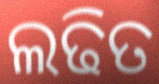
ଲଢିତ